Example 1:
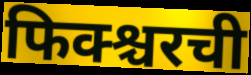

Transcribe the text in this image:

फिक्श्चरची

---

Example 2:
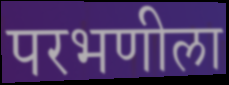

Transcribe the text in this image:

परभणीला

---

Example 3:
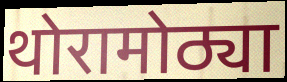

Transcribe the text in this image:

थोरामोठ्या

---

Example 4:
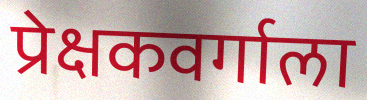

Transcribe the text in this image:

प्रेक्षकवर्गाला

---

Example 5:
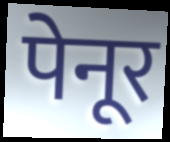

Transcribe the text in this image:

पेनूर